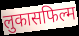
लुकासफिल्म